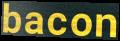
bacon